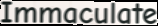
Immaculate